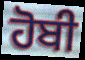
ਹੋਬੀ